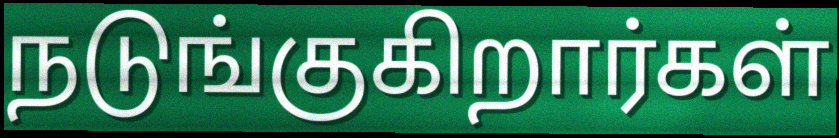
நடுங்குகிறார்கள்